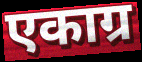
एकाग्र